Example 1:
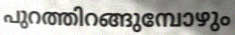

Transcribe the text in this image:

പുറത്തിറങ്ങുമ്പോഴും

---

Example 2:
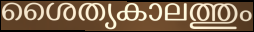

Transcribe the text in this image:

ശൈത്യകാലത്തും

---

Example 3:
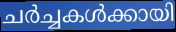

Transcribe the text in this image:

ചർച്ചകൾക്കായി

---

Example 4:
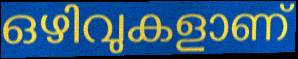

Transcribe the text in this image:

ഒഴിവുകളാണ്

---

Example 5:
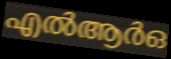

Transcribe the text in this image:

എൽആർഒ